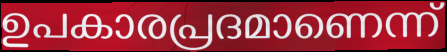
ഉപകാരപ്രദമാണെന്ന്